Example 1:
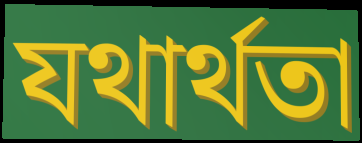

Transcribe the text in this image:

যথাৰ্থতা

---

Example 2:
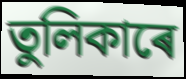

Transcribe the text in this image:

তুলিকাৰে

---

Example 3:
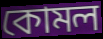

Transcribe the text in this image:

কোমল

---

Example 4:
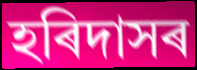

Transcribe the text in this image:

হৰিদাসৰ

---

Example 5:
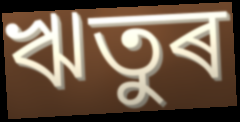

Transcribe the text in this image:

ঋতুৰ